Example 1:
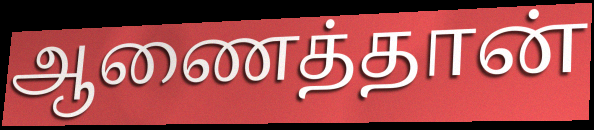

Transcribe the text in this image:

ஆணைத்தான்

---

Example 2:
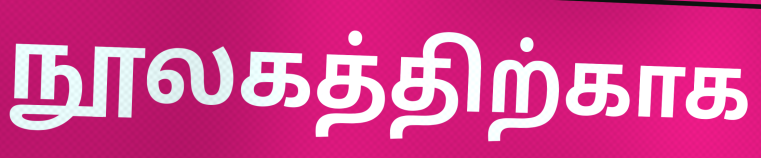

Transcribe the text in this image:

நூலகத்திற்காக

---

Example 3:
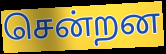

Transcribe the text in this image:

சென்றன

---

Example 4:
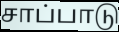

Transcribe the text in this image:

சாப்பாடு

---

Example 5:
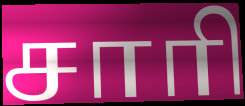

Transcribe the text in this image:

சாரி